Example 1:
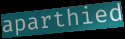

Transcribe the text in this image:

aparthied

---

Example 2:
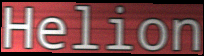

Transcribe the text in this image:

Helion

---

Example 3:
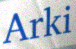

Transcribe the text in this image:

Arki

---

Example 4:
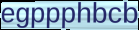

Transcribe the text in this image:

egppphbcb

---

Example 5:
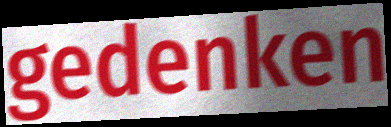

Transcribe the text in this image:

gedenken